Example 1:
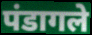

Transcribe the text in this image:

पंडागले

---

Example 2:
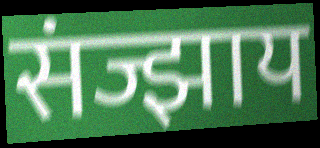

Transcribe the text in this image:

संज्झाय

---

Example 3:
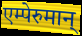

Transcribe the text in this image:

एम्पेरुमान्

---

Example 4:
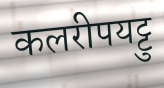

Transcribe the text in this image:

कलरीपयट्टु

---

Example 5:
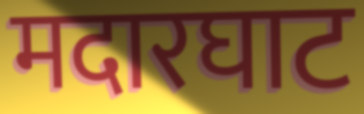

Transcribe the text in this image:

मदारघाट